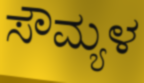
ಸೌಮ್ಯಳ